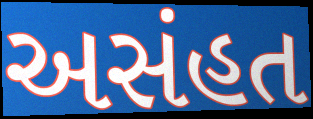
અસંહત